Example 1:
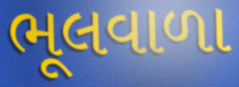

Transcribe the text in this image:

ભૂલવાળા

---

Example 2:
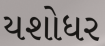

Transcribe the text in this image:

યશોધર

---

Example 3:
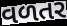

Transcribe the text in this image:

વળતર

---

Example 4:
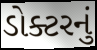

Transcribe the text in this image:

ડોક્ટરનું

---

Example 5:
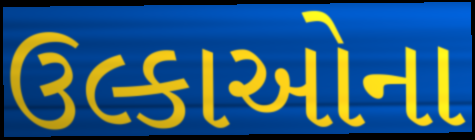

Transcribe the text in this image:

ઉલ્કાઓના